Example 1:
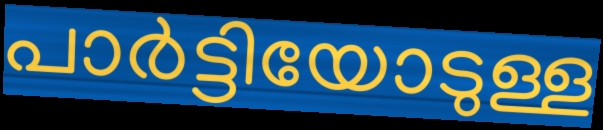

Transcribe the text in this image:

പാർട്ടിയോടുള്ള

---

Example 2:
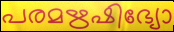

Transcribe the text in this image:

പരമഋഷിഭ്യോ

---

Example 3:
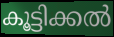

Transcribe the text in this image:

കൂട്ടിക്കൽ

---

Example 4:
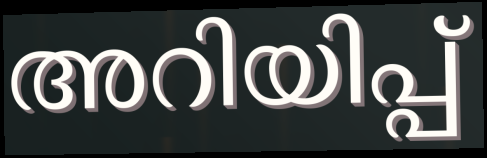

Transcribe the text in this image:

അറിയിപ്പ്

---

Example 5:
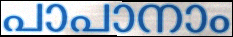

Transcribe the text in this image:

പാപാനാം